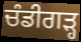
ਚੰਡੀਗਡ਼੍ਹ